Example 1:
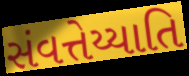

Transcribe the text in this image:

સંવત્તેય્યાતિ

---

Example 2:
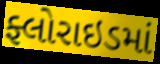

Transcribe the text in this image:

ફ્લોરાઇડમાં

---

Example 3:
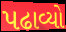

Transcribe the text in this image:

પઢાવ્યો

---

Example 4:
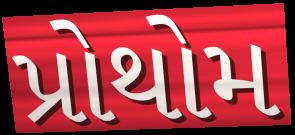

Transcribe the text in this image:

પ્રોથોમ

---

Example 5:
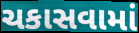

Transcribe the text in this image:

ચકાસવામાં